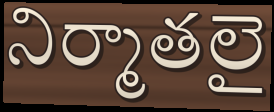
నిర్మాతలై